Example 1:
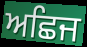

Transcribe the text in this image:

ਅਛਿਜ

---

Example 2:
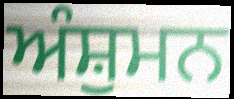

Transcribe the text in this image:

ਅੰਸ਼ੁਮਨ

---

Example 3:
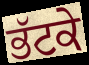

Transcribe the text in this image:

ਭੱਟਕੇ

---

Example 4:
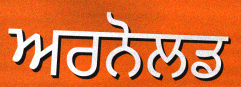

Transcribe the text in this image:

ਅਰਨੋਲਡ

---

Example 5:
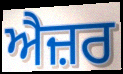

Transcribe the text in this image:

ਐਜ਼ਰ